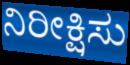
ನಿರೀಕ್ಷಿಸು